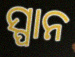
ସ୍ପାନ